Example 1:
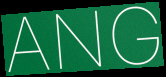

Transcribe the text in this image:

ANG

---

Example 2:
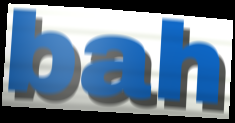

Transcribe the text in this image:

bah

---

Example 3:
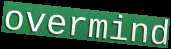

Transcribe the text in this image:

overmind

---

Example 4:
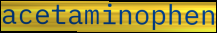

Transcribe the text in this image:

acetaminophen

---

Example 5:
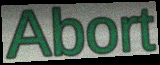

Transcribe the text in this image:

Abort